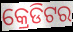
କ୍ରେଡିଟର